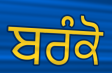
ਬਰੰਕੋ